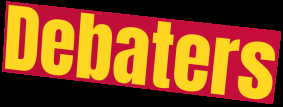
Debaters